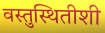
वस्तुस्थितीशी